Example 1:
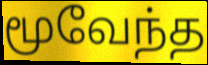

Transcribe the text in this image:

மூவேந்த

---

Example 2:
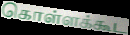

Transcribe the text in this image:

கொள்ளக்கூட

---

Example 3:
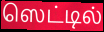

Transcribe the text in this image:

ஸெட்டில்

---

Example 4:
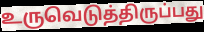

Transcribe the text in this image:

உருவெடுத்திருப்பது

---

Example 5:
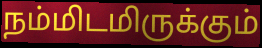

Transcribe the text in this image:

நம்மிடமிருக்கும்